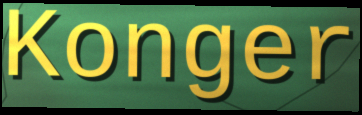
Konger